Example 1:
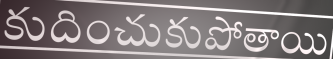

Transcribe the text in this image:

కుదించుకుపోతాయి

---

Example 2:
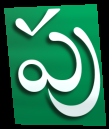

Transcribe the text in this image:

పు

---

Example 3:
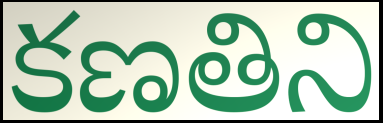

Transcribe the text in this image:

కణతిని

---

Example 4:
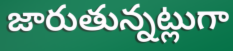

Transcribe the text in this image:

జారుతున్నట్లుగా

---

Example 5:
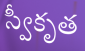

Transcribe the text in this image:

స్వీకృత